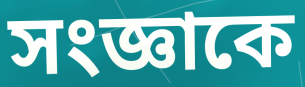
সংজ্ঞাকে